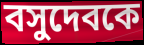
বসুদেবকে